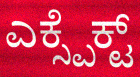
ಎಕ್ಸ್ಪೆಕ್ಟ್